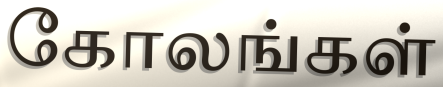
கோலங்கள்